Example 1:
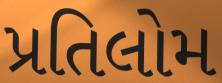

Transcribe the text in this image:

પ્રતિલોમ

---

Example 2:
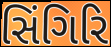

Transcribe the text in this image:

સિંગિરિ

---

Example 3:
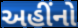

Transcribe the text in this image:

અહીંનો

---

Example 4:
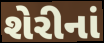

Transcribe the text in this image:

શેરીનાં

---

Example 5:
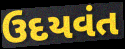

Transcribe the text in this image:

ઉદયવંત